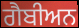
ਗੈਬੀਅਨ